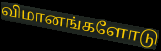
விமானங்களோடு